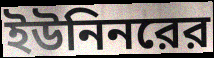
ইউনিনরের